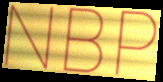
NBP